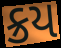
ક્રય